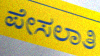
ಪೇಸಲಾತಿ